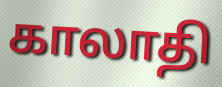
காலாதி